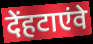
देंहटाएंवे